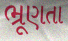
ભ્રૂણતા